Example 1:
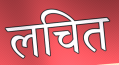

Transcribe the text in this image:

लचित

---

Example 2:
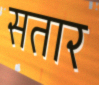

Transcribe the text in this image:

सतार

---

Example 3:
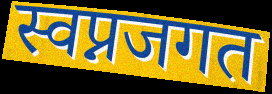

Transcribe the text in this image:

स्वप्नजगत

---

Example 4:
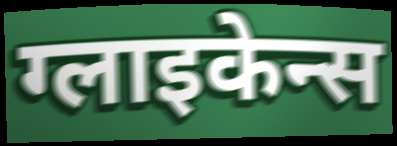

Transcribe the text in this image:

ग्लाइकेन्स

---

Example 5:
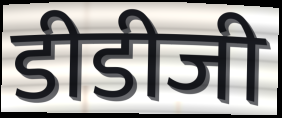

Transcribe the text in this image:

डीडीजी